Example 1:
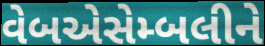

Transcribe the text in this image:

વેબએસેમ્બલીને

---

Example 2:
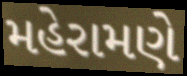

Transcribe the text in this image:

મહેરામણે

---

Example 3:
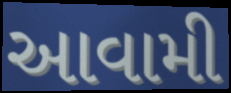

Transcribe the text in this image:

આવામી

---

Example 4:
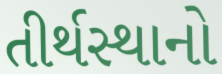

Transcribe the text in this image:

તીર્થસ્થાનો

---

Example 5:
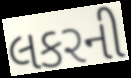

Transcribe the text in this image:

લકરની